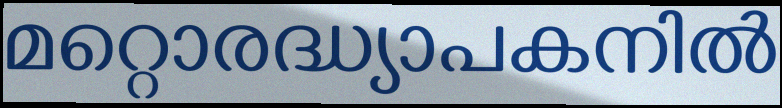
മറ്റൊരദ്ധ്യാപകനിൽ